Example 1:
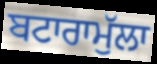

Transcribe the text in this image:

ਬਟਾਰਾਮੁੱਲਾ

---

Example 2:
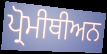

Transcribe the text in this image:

ਪ੍ਰੋਮੀਥੀਅਨ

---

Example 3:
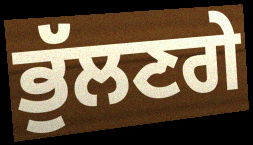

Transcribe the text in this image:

ਭੁੱਲਣਗੇ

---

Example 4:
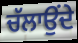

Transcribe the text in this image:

ਚੱਲਾਉਂਦੇ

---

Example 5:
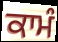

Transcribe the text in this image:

ਕਾਮੰ